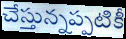
చేస్తున్నప్పటికీ